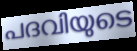
പദവിയുടെ